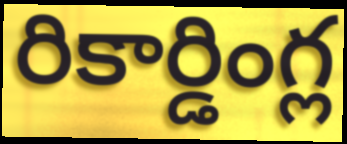
రికార్డింగ్ల